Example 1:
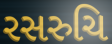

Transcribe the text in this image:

રસરુચિ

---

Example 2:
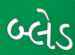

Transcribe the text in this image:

બ્લેડ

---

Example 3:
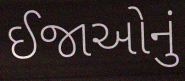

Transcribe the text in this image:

ઈજાઓનું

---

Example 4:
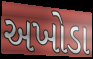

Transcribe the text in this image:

અખોડા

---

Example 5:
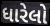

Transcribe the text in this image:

ધારેલો